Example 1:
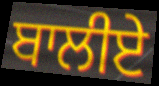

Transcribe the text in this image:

ਬਾਲੀਏ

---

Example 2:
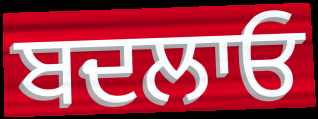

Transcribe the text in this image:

ਬਦਲਾਓ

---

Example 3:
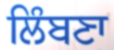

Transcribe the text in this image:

ਲਿੰਬਣਾ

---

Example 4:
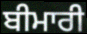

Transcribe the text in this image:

ਬੀਮਾਰੀ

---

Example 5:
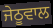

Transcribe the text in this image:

ਜੇਠੂਵਾਲ